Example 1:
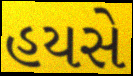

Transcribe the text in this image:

હયસે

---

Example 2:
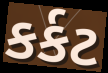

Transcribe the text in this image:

કર્કટ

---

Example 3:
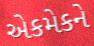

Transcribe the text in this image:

એકમેકને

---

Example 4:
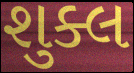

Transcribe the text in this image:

શુક્લ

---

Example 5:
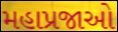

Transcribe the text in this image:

મહાપ્રજાઓ